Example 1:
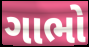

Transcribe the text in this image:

ગાભો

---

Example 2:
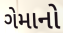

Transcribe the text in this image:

ગેમાનો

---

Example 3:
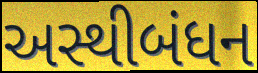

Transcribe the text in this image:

અસ્થીબંધન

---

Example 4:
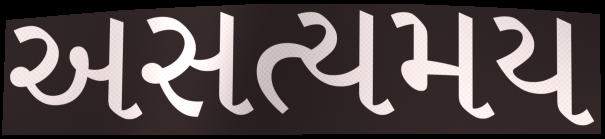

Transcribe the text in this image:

અસત્યમય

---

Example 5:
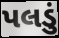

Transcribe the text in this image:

પલડું